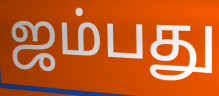
ஜம்பது